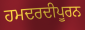
ਹਮਦਰਦੀਪੂਰਨ